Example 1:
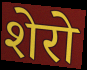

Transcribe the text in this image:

शेरो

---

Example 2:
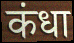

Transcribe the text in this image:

कंधा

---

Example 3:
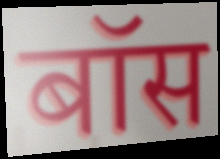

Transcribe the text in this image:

बॉस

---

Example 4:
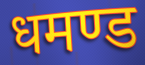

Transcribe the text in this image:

धमण्ड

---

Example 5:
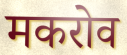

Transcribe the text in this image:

मकरोव